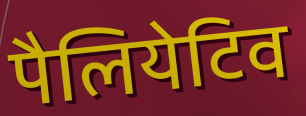
पैलियेटिव